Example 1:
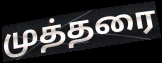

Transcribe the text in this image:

முத்தரை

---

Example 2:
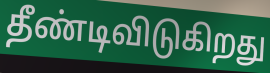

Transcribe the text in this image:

தீண்டிவிடுகிறது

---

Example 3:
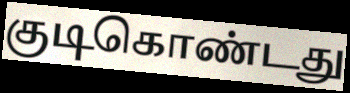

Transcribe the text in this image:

குடிகொண்டது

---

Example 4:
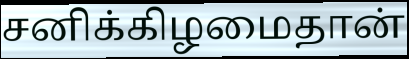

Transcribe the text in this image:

சனிக்கிழமைதான்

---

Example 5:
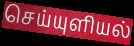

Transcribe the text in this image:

செய்யுளியல்